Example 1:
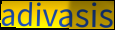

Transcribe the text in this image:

adivasis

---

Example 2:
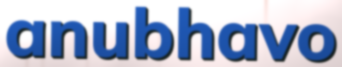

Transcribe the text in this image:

anubhavo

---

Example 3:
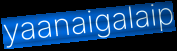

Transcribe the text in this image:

yaanaigalaip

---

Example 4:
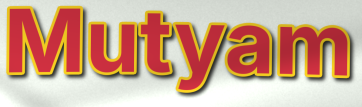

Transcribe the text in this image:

Mutyam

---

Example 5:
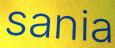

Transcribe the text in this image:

sania